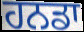
ਹਨਡਾ